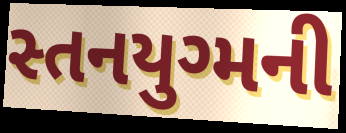
સ્તનયુગ્મની